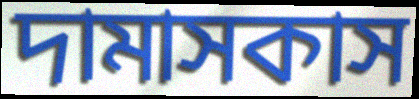
দামাসকাস